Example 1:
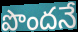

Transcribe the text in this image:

పొందనే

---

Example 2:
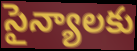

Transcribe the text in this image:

సైన్యాలకు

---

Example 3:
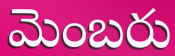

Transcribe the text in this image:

మెంబరు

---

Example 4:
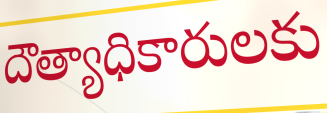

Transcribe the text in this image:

దౌత్యాధికారులకు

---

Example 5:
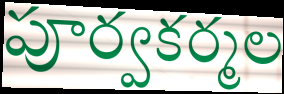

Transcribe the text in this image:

పూర్వకర్మల